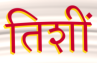
तिशीं